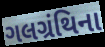
ગલગ્રંથિના